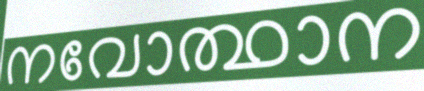
നവോത്ഥാന